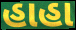
હાહા